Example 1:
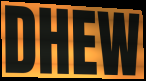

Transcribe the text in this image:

DHEW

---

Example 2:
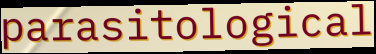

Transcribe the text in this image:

parasitological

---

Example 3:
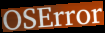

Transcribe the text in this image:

OSError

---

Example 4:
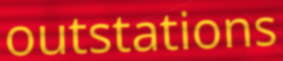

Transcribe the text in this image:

outstations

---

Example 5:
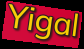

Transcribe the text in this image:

Yigal